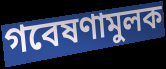
গবেষণামুলক